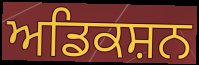
ਅਡਿਕਸ਼ਨ